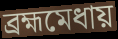
ব্রহ্মমেধায়